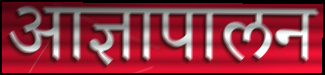
आज्ञापालन